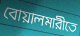
বোয়ালমারীতে